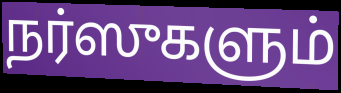
நர்ஸுகளும்